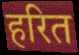
हरित